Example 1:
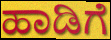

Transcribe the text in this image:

ಹಾಡಿಗೆ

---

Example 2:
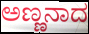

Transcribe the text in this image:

ಅಣ್ಣನಾದ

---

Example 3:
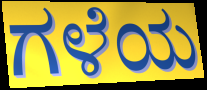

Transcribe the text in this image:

ಗಳೆಯ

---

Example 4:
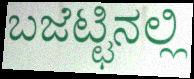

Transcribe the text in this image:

ಬಜೆಟ್ಟಿನಲ್ಲಿ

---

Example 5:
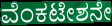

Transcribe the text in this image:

ವೆಂಕಟೇಶನೇ